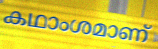
കഥാംശമാണ്